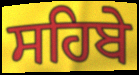
ਸਹਿਬੇ